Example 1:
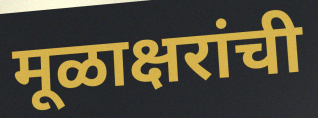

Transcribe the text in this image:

मूळाक्षरांची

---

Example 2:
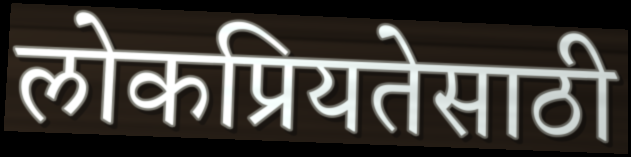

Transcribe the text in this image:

लोकप्रियतेसाठी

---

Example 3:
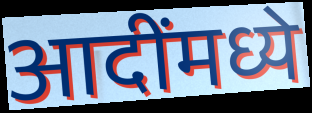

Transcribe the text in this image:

आदींमध्ये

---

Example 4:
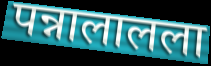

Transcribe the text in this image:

पन्नालालला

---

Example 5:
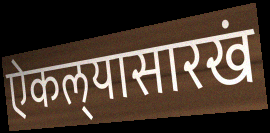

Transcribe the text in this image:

ऐकल्यासारखं